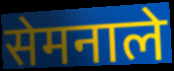
सेमनाले